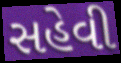
સહેવી